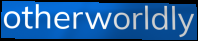
otherworldly